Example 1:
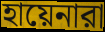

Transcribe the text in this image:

হায়েনারা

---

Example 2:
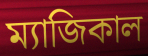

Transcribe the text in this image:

ম্যাজিকাল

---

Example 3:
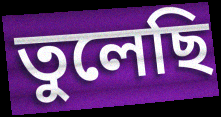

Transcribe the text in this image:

তুলেছি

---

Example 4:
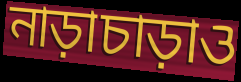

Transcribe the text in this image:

নাড়াচাড়াও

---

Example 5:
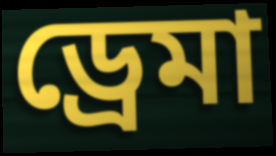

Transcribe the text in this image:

ড্রেমা